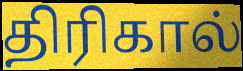
திரிகால்